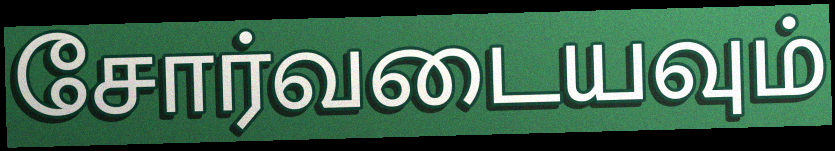
சோர்வடையவும்